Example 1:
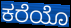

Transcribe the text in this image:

ಕರೆಯೊ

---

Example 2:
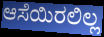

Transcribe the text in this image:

ಆಸೆಯಿರಲಿಲ್ಲ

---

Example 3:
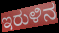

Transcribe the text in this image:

ಇರುಳಿನ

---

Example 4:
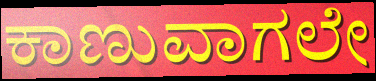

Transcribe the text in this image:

ಕಾಣುವಾಗಲೇ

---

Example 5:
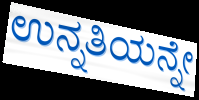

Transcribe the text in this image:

ಉನ್ನತಿಯನ್ನೇ